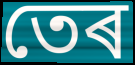
তেৰ